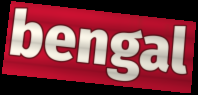
bengal